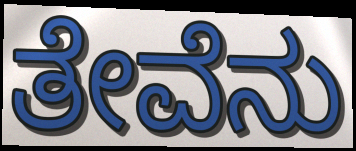
ತೇವೆನು